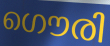
ഗൌരി